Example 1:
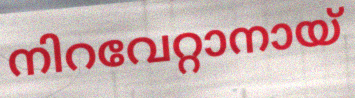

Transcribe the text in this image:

നിറവേറ്റാനായ്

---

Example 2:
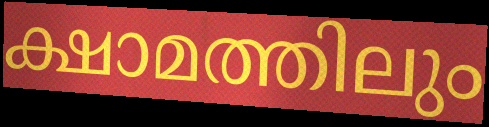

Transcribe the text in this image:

ക്ഷാമത്തിലും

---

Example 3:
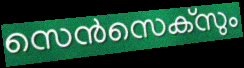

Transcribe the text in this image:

സെൻസെക്സും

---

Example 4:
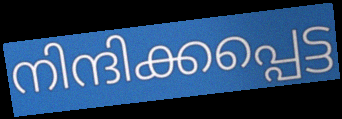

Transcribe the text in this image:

നിന്ദിക്കപ്പെട്ട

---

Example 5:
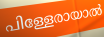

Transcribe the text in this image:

പിള്ളേരായാൽ